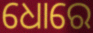
ଧୋରେ